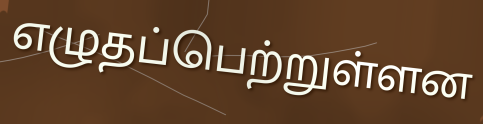
எழுதப்பெற்றுள்ளன